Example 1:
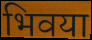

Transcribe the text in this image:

भिवया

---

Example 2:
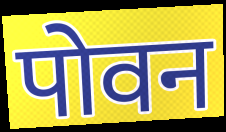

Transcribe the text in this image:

पोवन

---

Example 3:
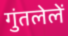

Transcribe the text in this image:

गुंतलेलें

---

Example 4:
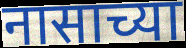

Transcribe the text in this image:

नासाच्या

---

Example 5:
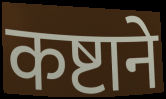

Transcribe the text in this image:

कष्टाने